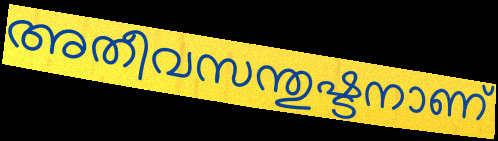
അതീവസന്തുഷ്ടനാണ്